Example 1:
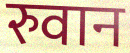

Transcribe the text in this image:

रुवान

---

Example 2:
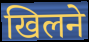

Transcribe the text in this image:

खिलने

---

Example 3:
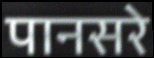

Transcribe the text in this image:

पानसरे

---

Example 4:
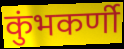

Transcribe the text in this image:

कुंभकर्णी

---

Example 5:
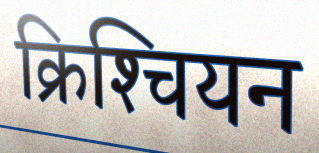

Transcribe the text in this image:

क्रिश्‍चियन